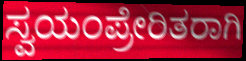
ಸ್ವಯಂಪ್ರೇರಿತರಾಗಿ